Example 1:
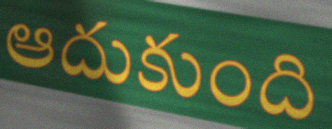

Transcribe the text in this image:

ఆదుకుంది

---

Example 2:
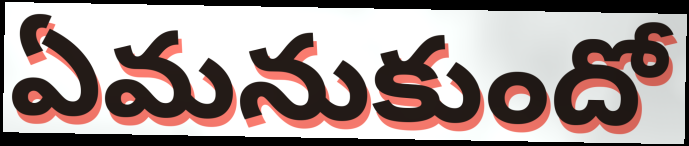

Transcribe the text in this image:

ఏమనుకుందో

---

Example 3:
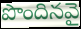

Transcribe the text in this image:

పొందినవై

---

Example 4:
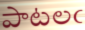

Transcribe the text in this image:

పాటలఁ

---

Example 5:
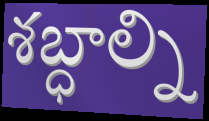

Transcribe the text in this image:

శబ్ధాల్ని